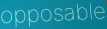
opposable